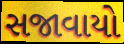
સજાવાયો